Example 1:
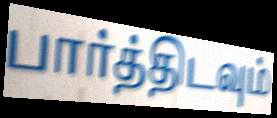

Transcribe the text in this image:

பார்த்திடவும்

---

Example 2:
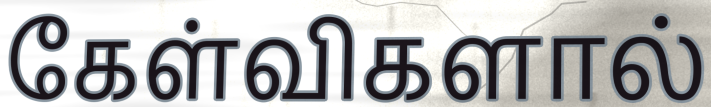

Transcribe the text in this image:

கேள்விகளால்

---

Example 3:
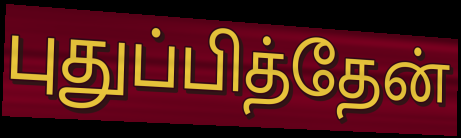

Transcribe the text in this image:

புதுப்பித்தேன்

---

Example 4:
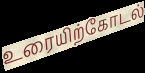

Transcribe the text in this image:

உரையிற்கோடல்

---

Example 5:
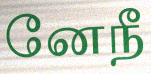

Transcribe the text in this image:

னேநீ